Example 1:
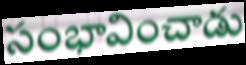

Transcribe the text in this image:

సంభావించాడు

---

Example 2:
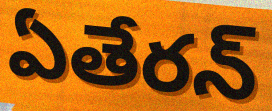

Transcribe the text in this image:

ఏతేరన్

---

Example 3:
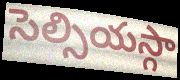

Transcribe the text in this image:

సెల్సియస్గా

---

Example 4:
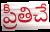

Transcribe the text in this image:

ప్రీతిచే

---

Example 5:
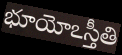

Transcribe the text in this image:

భూయోఽస్తీతి